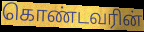
கொண்டவரின்